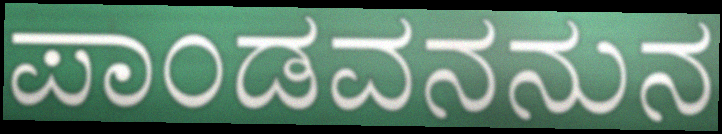
ಪಾಂಡವನನುನ